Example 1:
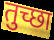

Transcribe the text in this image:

तुच्छा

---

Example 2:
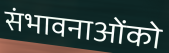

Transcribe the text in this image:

संभावनाओंको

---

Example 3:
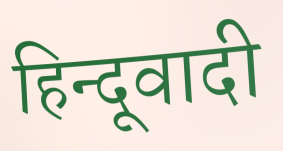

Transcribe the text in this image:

हिन्दूवादी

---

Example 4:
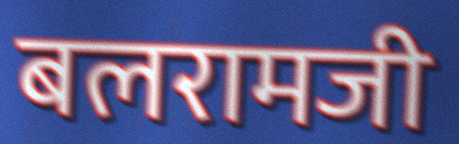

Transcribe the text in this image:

बलरामजी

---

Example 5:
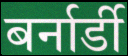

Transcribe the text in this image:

बर्नार्डी